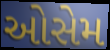
ઓસેમ